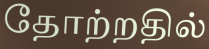
தோற்றதில்